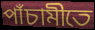
পাঁচামীতে